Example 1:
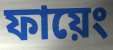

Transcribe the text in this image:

ফায়েং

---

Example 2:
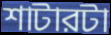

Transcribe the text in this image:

শাটারটা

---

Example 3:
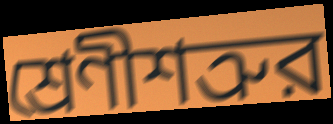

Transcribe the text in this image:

শ্রেণীশত্রুর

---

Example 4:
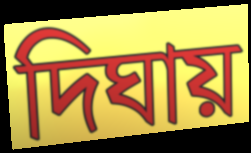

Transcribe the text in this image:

দিঘায়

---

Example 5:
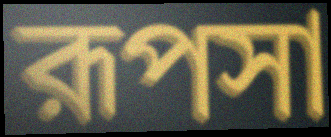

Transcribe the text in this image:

রূপসা